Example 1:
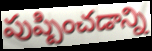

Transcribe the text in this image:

పుష్పించడాన్ని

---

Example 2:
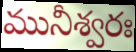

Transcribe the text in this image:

మునీశ్వరః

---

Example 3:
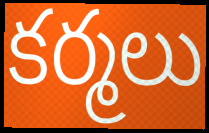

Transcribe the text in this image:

కర్మలు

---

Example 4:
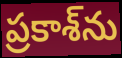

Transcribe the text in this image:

ప్రకాశ్‌ను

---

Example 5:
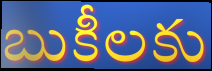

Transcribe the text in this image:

బుకీలకు